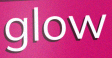
glow